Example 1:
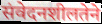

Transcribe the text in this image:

संवेदनशीलतेने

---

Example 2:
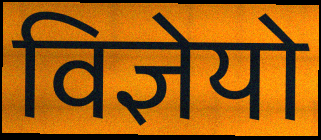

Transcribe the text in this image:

विज्ञेयो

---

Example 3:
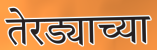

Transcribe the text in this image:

तेरड्याच्या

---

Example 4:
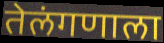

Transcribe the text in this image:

तेलंगणाला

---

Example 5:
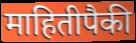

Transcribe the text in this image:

माहितीपैकी